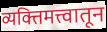
व्यक्तिमत्त्वातून